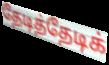
தேடித்தேடிக்